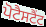
ਪੋਟੈਸਟੈਂਟ